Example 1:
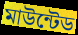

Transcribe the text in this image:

মাউন্টেড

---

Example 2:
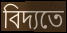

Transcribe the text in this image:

বিদ্যতে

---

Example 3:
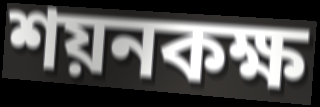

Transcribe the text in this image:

শয়নকক্ষ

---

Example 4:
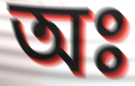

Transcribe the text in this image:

অঃ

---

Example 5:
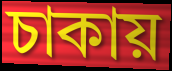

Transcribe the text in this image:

চাকায়